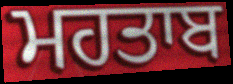
ਮਹਤਾਬ